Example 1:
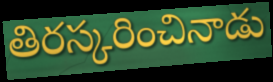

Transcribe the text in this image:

తిరస్కరించినాడు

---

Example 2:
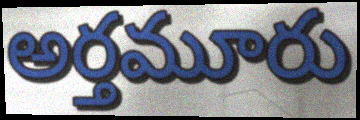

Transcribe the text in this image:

అర్తమూరు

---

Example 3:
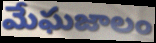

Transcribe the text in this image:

మేఘజాలం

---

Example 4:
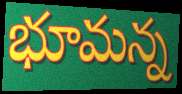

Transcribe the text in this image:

భూమన్న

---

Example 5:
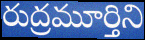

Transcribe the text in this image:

రుద్రమూర్తిని